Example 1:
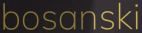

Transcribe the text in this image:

bosanski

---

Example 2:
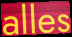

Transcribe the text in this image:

alles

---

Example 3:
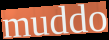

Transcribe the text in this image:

muddo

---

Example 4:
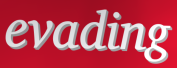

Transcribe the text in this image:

evading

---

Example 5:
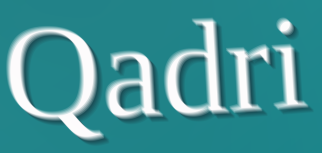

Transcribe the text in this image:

Qadri